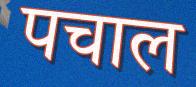
पचाल